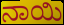
ನಾಯಿ